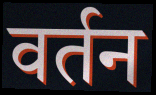
वर्तन